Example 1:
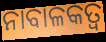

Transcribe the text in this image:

ନାବାଳକତ୍ଵ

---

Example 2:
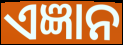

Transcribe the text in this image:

ଏଜ୍ଞାନ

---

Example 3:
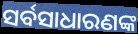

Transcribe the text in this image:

ସର୍ବସାଧାରଣଙ୍କ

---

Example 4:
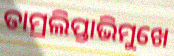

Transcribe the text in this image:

ତାମ୍ରଲିପ୍ତାଭିମୁଖେ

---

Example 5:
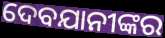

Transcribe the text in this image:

ଦେବଯାନୀଙ୍କର